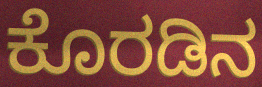
ಕೊರಡಿನ